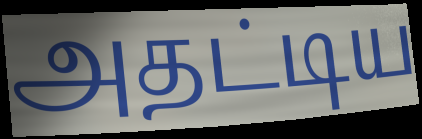
அதட்டிய